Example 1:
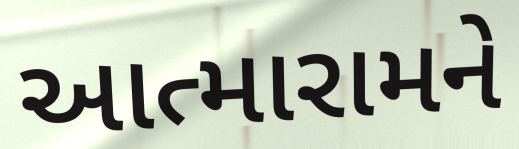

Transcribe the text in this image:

આત્મારામને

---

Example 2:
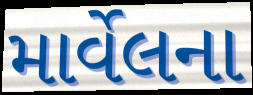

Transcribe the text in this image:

માર્વેલના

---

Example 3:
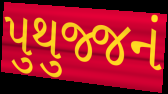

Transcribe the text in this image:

પુથુજ્જનં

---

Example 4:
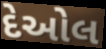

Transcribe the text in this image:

દેઓલ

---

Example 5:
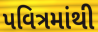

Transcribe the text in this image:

પવિત્રમાંથી